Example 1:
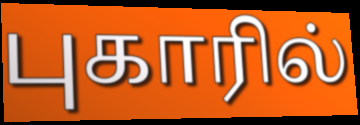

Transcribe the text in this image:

புகாரில்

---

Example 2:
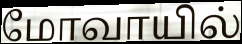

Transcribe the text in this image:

மோவாயில்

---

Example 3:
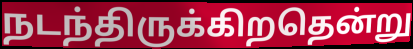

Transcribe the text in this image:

நடந்திருக்கிறதென்று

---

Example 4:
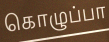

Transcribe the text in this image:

கொழுப்பா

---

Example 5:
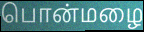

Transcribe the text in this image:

பொன்மழை